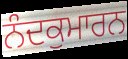
ਨੰਦਕੁਮਾਰਨ